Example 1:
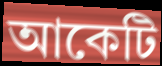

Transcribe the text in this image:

আকেটি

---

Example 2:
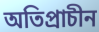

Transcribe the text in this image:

অতিপ্রাচীন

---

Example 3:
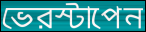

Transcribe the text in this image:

ভেরস্টাপেন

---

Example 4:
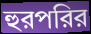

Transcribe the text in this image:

হুরপরির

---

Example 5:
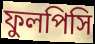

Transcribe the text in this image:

ফুলপিসি